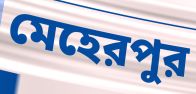
মেহেরপুর